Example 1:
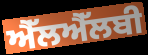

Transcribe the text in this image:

ਐੱਲਐੱਲਬੀ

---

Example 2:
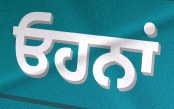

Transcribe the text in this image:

ਓਹਨਾਂ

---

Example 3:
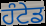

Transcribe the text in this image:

ਹੰਟੇਡ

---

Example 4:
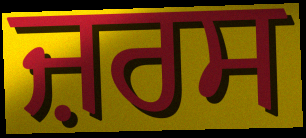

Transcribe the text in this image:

ਜ਼ਰਸ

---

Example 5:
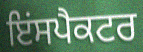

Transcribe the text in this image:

ਇਂਸਪੈਕਟਰ